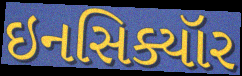
ઇનસિક્યૉર